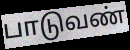
பாடுவண்